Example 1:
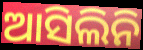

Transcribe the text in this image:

ଆସିଲିନି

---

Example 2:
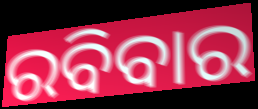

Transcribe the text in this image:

ରବିବାର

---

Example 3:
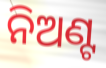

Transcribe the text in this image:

ନିଅଣ୍ଟ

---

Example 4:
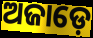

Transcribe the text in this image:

ଅଜାଡ଼େ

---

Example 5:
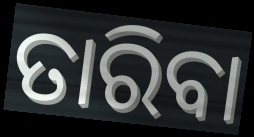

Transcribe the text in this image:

ତାରିବା